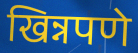
खिन्नपणे